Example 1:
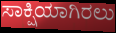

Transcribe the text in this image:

ಸಾಕ್ಷಿಯಾಗಿರಲು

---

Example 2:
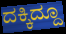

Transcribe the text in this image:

ದಕ್ಕಿದ್ದೂ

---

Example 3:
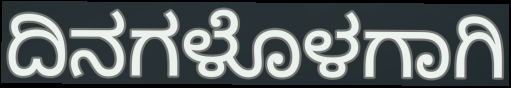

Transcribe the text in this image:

ದಿನಗಳೊಳಗಾಗಿ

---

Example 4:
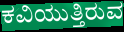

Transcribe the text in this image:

ಕವಿಯುತ್ತಿರುವ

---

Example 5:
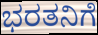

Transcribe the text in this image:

ಭರತನಿಗೆ